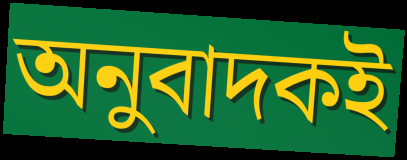
অনুবাদকই